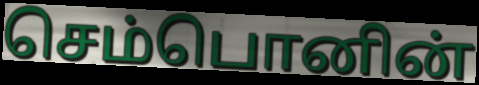
செம்பொனின்